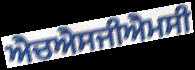
ਐਚਐਸਜੀਐਮਸੀ